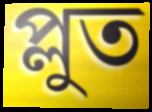
প্লুত